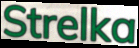
Strelka